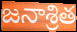
జనాశ్రిత